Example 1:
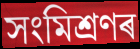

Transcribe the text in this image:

সংমিশ্ৰণৰ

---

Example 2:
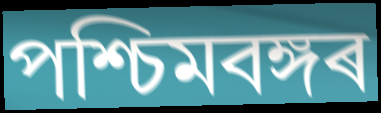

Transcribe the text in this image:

পশ্চিমবঙ্গৰ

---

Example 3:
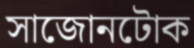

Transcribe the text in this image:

সাজোনটোক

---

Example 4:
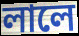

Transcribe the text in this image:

লালে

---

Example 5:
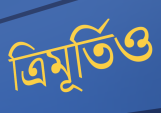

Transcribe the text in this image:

ত্ৰিমূৰ্তিও